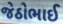
જેઠોભાઈ